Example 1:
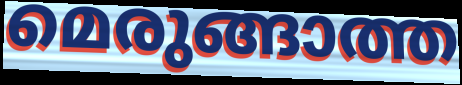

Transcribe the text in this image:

മെരുങ്ങാത്ത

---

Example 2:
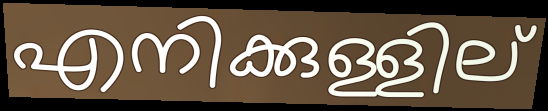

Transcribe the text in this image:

എനിക്കുള്ളില്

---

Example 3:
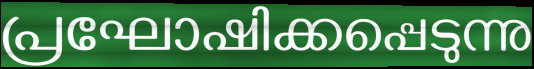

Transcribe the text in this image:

പ്രഘോഷിക്കപ്പെടുന്നു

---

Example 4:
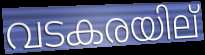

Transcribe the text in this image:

വടകരയില്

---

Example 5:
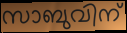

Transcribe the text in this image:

സാബുവിന്